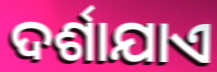
ଦର୍ଶାଯାଏ